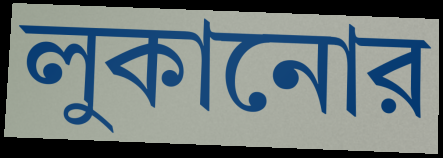
লুকানোর